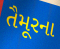
તૈમૂરના